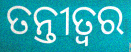
ତନ୍ତୀତ୍ୱର